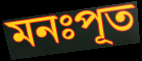
মনঃপূত